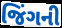
જિંગની